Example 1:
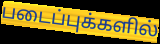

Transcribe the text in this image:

படைப்புக்களில்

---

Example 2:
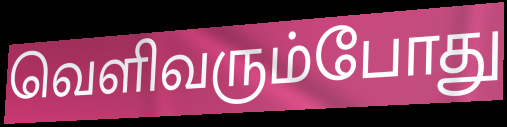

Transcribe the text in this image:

வெளிவரும்போது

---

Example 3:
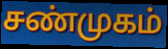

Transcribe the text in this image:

சண்முகம்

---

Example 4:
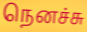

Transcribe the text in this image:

நெனச்சு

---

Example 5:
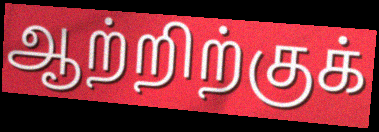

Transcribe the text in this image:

ஆற்றிற்குக்